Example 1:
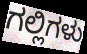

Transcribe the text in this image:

ಗಲ್ಲಿಗಳು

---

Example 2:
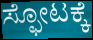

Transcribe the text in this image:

ಸ್ಫೋಟಕ್ಕೆ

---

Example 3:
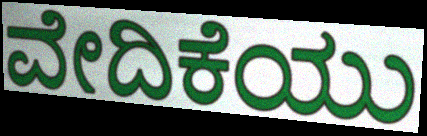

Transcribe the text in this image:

ವೇದಿಕೆಯು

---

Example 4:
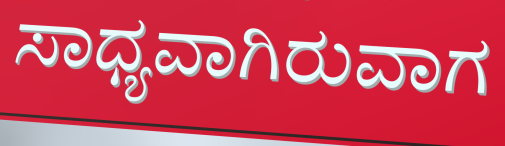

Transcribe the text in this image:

ಸಾಧ್ಯವಾಗಿರುವಾಗ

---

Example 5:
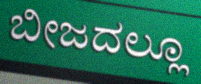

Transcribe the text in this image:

ಬೀಜದಲ್ಲೂ